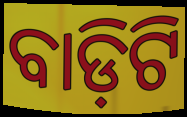
ବାଡ଼ିଟି